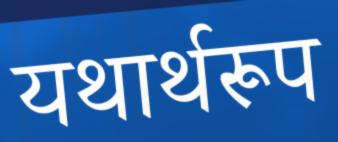
यथार्थरूप